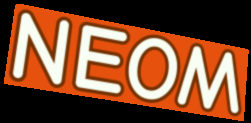
NEOM